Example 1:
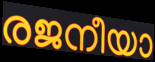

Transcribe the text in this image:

രജനീയാ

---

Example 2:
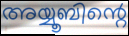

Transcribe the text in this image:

അയ്യൂബിന്റെ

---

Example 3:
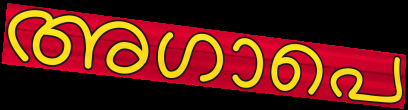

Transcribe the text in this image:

അഗാപെ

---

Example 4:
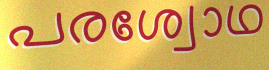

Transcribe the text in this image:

പരശ്വോഥ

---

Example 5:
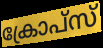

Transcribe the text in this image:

ക്രോപ്സ്